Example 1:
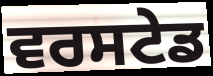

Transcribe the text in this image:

ਵਰਸਟੇਡ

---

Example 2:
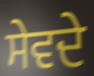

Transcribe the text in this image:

ਸੇਵਦੇ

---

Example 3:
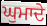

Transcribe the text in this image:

ਘੁਮਾਦੇ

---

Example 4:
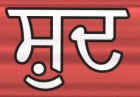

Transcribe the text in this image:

ਸ਼ੁਦ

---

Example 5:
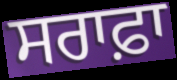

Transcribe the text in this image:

ਸਰਾਫ਼ਾ